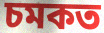
চমকত